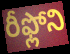
రీఫ్లోని